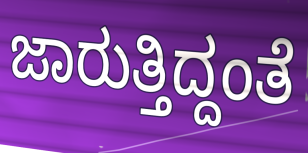
ಜಾರುತ್ತಿದ್ದಂತೆ